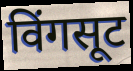
विंगसूट